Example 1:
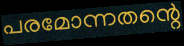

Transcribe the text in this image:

പരമോന്നതന്റെ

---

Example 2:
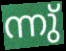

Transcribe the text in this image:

ന്നു്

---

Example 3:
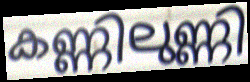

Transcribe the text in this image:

കണ്ണിലുണ്ണി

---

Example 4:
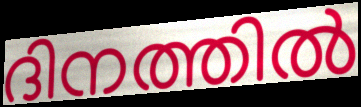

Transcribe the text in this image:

ദിനത്തിൽ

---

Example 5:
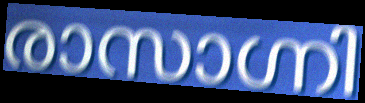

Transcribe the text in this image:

രാസാഗ്നി